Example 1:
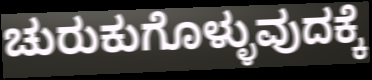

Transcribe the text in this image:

ಚುರುಕುಗೊಳ್ಳುವುದಕ್ಕೆ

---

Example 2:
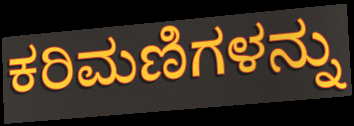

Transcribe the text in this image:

ಕರಿಮಣಿಗಳನ್ನು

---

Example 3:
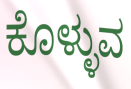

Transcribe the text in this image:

ಕೊಳ್ಳುವ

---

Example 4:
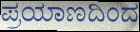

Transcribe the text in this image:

ಪ್ರಯಾಣದಿಂದ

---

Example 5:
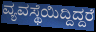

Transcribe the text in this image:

ವ್ಯವಸ್ಥೆಯಿದ್ದಿದ್ದರೆ